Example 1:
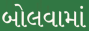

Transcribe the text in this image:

બોલવામાં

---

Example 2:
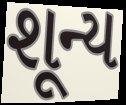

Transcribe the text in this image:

શૂન્ય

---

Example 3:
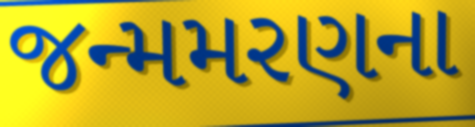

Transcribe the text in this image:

જન્મમરણના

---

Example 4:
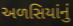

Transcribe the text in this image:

અળસિયાંનું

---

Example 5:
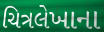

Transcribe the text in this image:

ચિત્રલેખાના